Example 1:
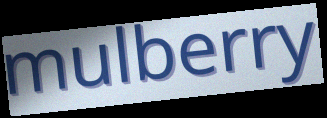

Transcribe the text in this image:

mulberry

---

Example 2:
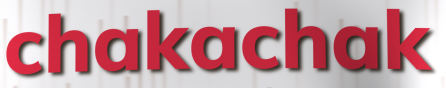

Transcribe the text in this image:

chakachak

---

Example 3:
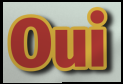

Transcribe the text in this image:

Oui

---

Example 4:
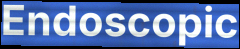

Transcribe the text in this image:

Endoscopic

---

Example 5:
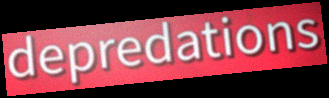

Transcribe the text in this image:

depredations